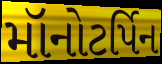
મૉનોટર્પિન